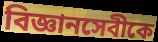
বিজ্ঞানসেবীকে